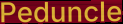
Peduncle